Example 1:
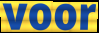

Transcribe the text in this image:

voor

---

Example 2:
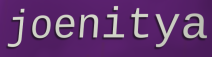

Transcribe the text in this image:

joenitya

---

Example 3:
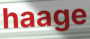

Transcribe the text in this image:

haage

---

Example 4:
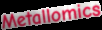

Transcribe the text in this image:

Metallomics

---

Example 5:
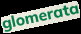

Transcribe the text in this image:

glomerata